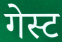
गेस्ट